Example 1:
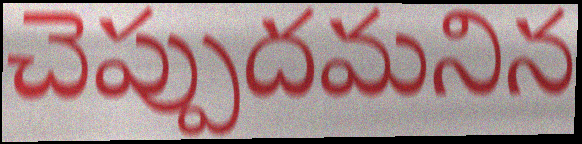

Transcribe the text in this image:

చెప్పుదమనిన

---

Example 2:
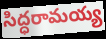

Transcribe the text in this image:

సిద్ధరామయ్య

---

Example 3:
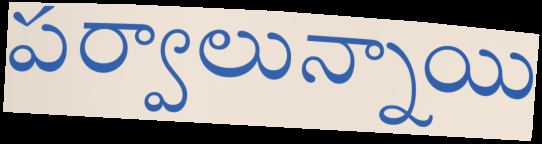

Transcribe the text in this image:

పర్వాలున్నాయి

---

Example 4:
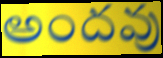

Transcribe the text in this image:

అందవు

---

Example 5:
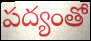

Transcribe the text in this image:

పద్యంతో